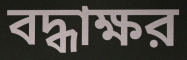
বদ্ধাক্ষর